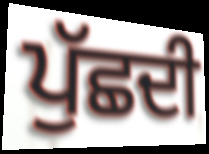
ਪੁੱਛਦੀ